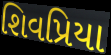
શિવપ્રિયા